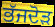
ਭੱਜਦੋੜ